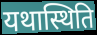
यथास्थिति